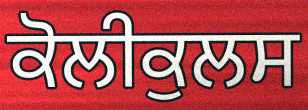
ਕੋਲੀਕੁਲਸ